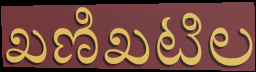
ಖಣಿಖಟಿಲ